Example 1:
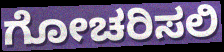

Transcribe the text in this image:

ಗೋಚರಿಸಲಿ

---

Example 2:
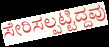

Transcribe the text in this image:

ಸೇರಿಸಲ್ಪಟ್ಟಿದ್ದವು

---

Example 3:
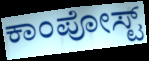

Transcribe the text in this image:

ಕಾಂಪೋಸ್ಟ್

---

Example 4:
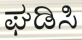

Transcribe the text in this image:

ಘಡಿಸಿ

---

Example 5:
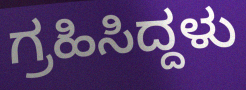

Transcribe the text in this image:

ಗ್ರಹಿಸಿದ್ದಳು